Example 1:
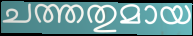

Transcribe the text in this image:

ചത്തതുമായ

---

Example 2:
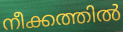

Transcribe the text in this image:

നീക്കത്തിൽ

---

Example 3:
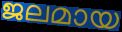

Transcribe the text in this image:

ജലമായ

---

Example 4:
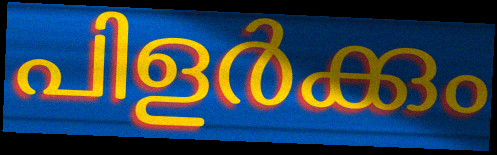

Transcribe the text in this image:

പിളർക്കും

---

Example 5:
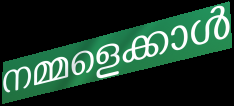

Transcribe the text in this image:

നമ്മളെക്കാൾ